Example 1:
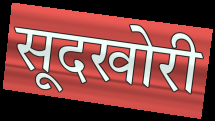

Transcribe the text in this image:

सूदखोरी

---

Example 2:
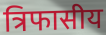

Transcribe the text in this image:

त्रिफासीय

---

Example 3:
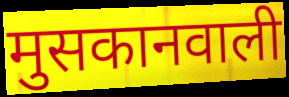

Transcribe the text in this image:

मुसकानवाली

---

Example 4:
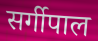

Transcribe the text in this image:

सर्गीपाल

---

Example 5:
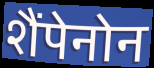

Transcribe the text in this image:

शैंपेनोन